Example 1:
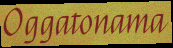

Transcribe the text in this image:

Oggatonama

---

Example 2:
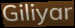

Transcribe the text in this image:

Giliyar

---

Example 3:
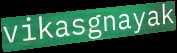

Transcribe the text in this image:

vikasgnayak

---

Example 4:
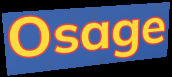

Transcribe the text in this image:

Osage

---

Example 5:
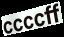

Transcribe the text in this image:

ccccff